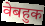
वेबहुक